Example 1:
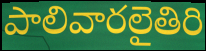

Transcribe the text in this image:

పాలివారలైతిరి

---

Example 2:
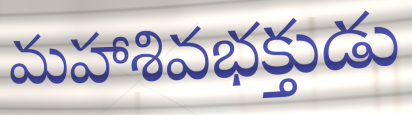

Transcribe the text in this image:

మహాశివభక్తుడు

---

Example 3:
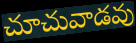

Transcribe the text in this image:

చూచువాడవు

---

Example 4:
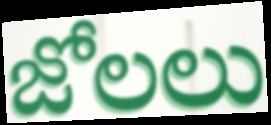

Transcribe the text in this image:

జోలలు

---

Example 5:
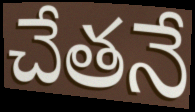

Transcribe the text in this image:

చేతనే